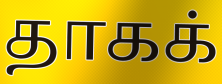
தாகக்